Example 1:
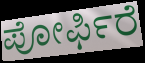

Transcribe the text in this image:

ಪೋರ್ಫಿರೆ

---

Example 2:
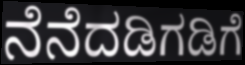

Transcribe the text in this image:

ನೆನೆದಡಿಗಡಿಗೆ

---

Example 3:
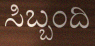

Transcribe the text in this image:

ಸಿಬ್ಬಂದಿ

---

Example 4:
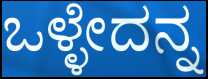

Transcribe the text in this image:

ಒಳ್ಳೇದನ್ನ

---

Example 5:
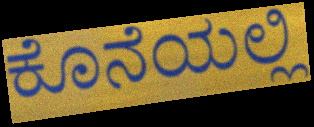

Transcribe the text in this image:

ಕೊನೆಯಲ್ಲಿ